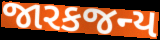
જારકજન્ય